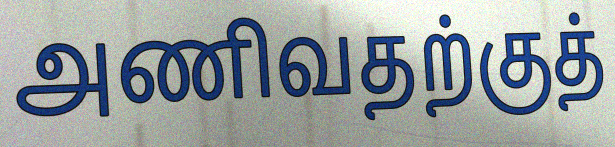
அணிவதற்குத்